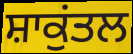
ਸ਼ਾਕੁਂਤਲ